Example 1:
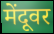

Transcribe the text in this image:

मेंदूवर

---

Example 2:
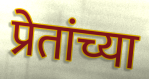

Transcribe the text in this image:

प्रेतांच्या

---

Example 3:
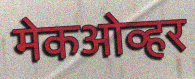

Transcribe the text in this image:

मेकओव्हर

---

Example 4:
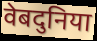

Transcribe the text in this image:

वेबदुनिया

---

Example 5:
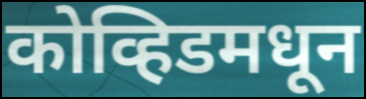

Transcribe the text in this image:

कोव्हिडमधून